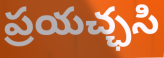
ప్రయచ్ఛసి